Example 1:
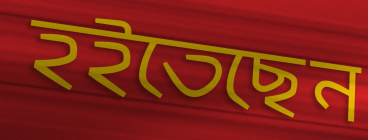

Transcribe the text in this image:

হইতেছেন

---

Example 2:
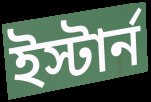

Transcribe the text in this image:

ইস্টার্ন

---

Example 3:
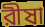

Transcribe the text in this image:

রীষা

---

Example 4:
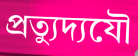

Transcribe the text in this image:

প্রত্যুদ্যযৌ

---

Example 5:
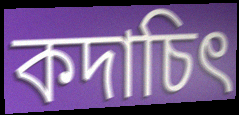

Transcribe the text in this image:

কদাচিৎ